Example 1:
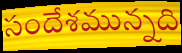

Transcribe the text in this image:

సందేశమున్నది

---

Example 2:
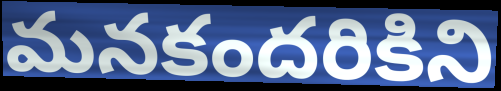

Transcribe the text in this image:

మనకందరికిని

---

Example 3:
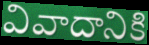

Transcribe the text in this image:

వివాదానికి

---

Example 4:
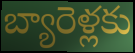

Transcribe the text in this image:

బ్యారెళ్లకు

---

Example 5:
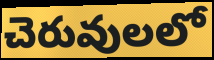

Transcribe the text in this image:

చెరువులలో